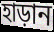
হাড়ান